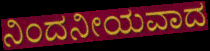
ನಿಂದನೀಯವಾದ